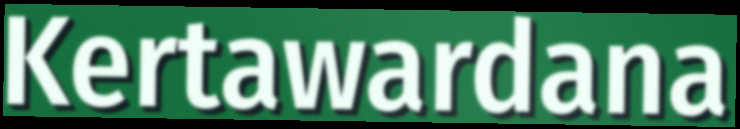
Kertawardana